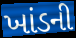
ખાંડની